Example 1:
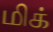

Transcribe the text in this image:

மிக்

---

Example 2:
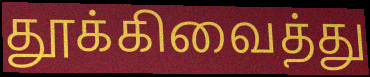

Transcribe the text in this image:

தூக்கிவைத்து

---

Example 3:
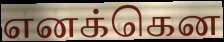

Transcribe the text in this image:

எனக்கென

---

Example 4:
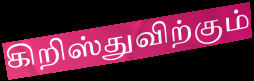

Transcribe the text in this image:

கிறிஸ்துவிற்கும்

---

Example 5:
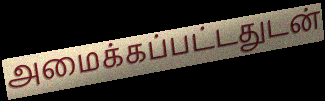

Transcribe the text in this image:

அமைக்கப்பட்டதுடன்